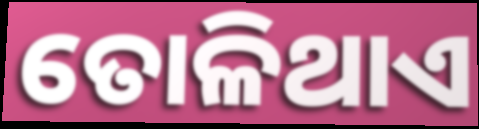
ତୋଳିଥାଏ